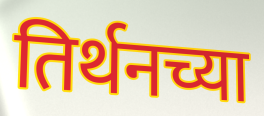
तिर्थनच्या